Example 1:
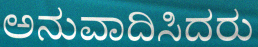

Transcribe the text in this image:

ಅನುವಾದಿಸಿದರು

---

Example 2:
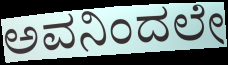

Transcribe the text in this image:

ಅವನಿಂದಲೇ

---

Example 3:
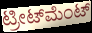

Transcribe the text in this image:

ಟ್ರೀಟ್‌ಮೆಂಟ್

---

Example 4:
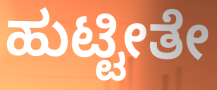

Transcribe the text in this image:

ಹುಟ್ಟೀತೇ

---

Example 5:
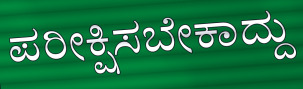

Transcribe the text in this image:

ಪರೀಕ್ಷಿಸಬೇಕಾದ್ದು